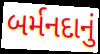
બર્મનદાનું